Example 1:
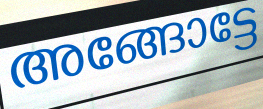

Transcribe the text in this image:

അങ്ങോട്ടേ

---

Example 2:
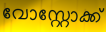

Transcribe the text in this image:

വോസ്റ്റോക്ക്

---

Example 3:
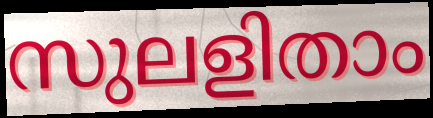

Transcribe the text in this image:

സുലളിതാം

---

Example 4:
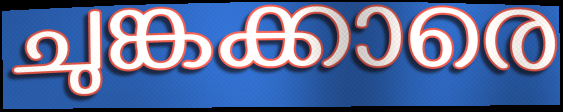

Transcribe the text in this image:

ചുങ്കക്കാരെ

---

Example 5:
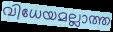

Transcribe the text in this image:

വിധേയമല്ലാത്ത